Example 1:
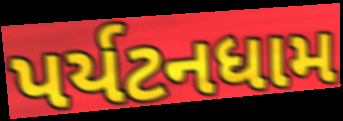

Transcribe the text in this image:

પર્યટનધામ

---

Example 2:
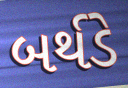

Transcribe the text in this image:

બર્થડે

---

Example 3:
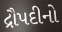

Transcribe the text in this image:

દ્રૌપદીનો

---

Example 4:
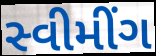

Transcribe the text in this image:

સ્વીમીંગ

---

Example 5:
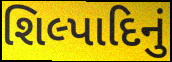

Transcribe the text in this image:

શિલ્પાદિનું